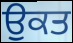
ਉੁਕਤ